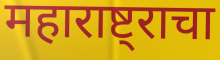
महाराष्ट्राचा